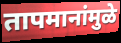
तापमानांमुळे